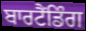
ਬਾਰਟੈਂਡਿੰਗ